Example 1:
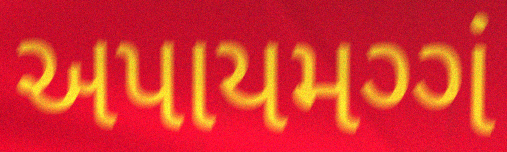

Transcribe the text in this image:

અપાયમગ્ગં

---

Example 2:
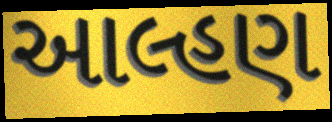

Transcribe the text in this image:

આલ્હણ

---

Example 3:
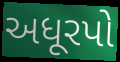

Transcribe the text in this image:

અધૂરપો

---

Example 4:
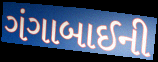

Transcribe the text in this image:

ગંગાબાઈની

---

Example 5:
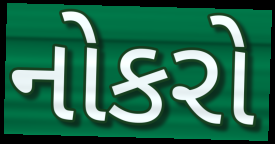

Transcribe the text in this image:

નોકરો